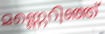
മണ്ണെറിഞ്ഞ്